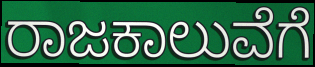
ರಾಜಕಾಲುವೆಗೆ